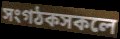
সংগঠকসকলে